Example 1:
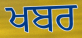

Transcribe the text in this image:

ਖਬਰ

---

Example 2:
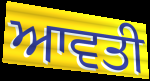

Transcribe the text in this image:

ਆਵਤੀ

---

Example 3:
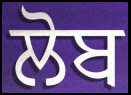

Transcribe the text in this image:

ਲੋਬ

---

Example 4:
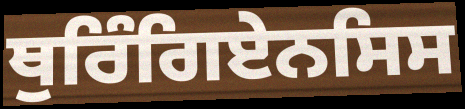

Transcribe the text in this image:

ਥੁਰਿੰਗਿਏਨਸਿਸ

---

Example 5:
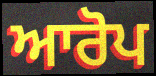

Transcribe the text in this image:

ਆਰੋਪ